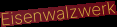
Eisenwalzwerk